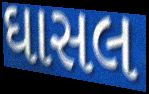
ઘાસલ